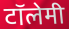
टॉलेमी